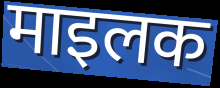
माइलक